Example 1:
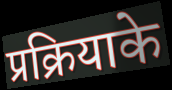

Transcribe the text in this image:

प्रक्रियाके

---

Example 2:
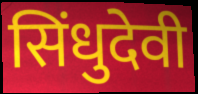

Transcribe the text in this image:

सिंधुदेवी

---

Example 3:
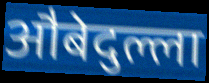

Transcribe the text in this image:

औबेदुल्ला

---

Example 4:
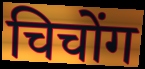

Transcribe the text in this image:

चिचोंग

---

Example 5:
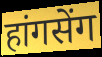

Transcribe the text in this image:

हांगसेंग